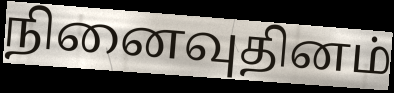
நினைவுதினம்